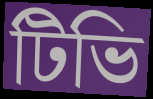
টিভি